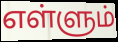
எள்ளும்